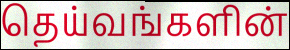
தெய்வங்களின்